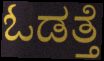
ಓಡತ್ತೆ